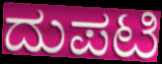
ದುಪಟಿ